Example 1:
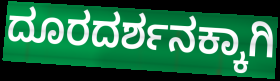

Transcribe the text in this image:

ದೂರದರ್ಶನಕ್ಕಾಗಿ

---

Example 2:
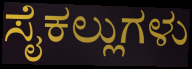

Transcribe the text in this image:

ಸೈಕಲ್ಲುಗಳು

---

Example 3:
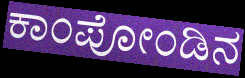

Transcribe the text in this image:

ಕಾಂಪೋಂಡಿನ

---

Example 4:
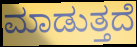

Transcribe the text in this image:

ಮಾಡುತ್ತದೆ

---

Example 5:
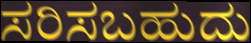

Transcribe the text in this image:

ಸರಿಸಬಹುದು